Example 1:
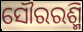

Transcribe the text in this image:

ସୌରରଶ୍ମି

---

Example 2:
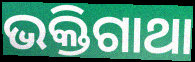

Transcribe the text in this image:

ଭକ୍ତିଗାଥା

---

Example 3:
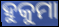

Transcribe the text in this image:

ହୁକୁମା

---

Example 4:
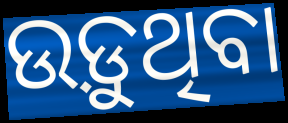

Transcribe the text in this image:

ଉଡ଼ୁଥିବା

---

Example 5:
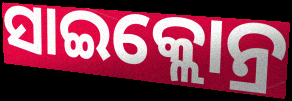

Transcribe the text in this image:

ସାଇକ୍ଲୋନ୍ର